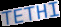
TETHI